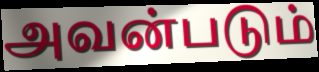
அவன்படும்